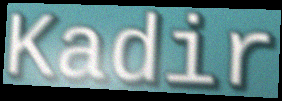
Kadir